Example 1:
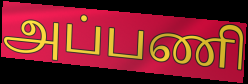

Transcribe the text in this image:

அப்பணி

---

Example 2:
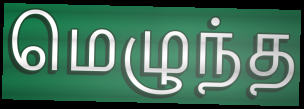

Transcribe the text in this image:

மெழுந்த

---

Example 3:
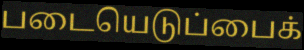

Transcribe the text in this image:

படையெடுப்பைக்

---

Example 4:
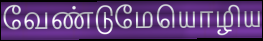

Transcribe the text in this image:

வேண்டுமேயொழிய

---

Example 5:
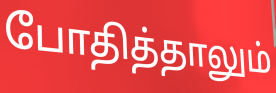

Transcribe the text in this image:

போதித்தாலும்